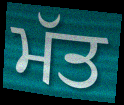
ਮੱਤ